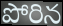
పోరిన